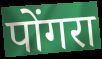
पोंगरा